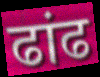
ढांढ